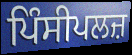
ਪਿੰਸੀਪਲਜ਼